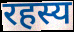
रहस्य